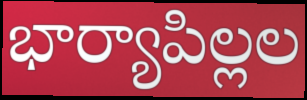
భార్యాపిల్లల